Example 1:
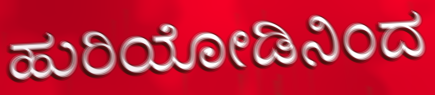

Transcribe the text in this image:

ಹುರಿಯೋಡಿನಿಂದ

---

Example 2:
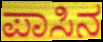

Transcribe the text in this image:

ಪಾಸಿನ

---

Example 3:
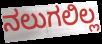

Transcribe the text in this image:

ನಲುಗಲಿಲ್ಲ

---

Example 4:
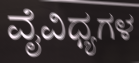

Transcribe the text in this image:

ವೈವಿಧ್ಯಗಳ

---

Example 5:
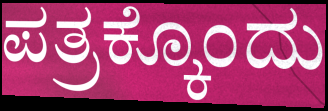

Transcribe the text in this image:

ಪತ್ರಕ್ಕೊಂದು